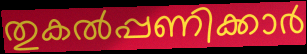
തുകൽപ്പണിക്കാർ